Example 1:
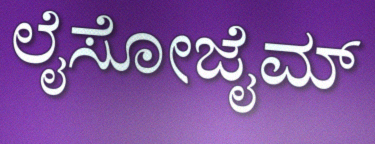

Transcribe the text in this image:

ಲೈಸೋಜೈಮ್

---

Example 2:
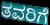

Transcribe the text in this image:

ತವರಿಗೆ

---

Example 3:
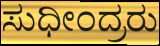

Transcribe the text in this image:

ಸುಧೀಂದ್ರರು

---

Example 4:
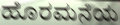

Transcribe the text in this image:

ಹೊರಮನೆಯ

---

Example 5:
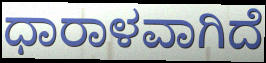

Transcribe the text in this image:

ಧಾರಾಳವಾಗಿದೆ